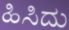
ಹಿಸಿದು